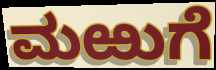
ಮಱುಗೆ